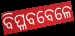
ବିପ୍ଳବବେଳେ